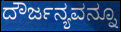
ದೌರ್ಜನ್ಯವನ್ನೂ